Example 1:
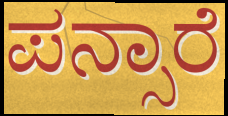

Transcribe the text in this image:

ಪನ್ಸಾರೆ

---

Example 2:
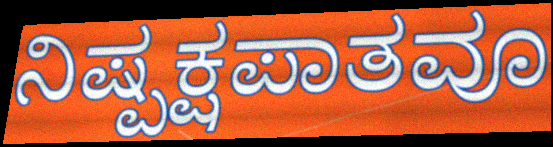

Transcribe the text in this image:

ನಿಷ್ಪಕ್ಷಪಾತವೂ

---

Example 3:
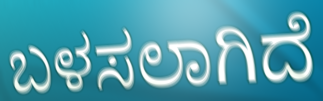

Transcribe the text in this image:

ಬಳಸಲಾಗಿದೆ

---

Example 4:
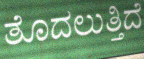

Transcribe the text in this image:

ತೊದಲುತ್ತಿದೆ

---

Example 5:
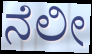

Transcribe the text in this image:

ನೆಲೀ